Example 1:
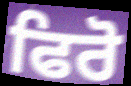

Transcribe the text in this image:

ਫਿਰੋ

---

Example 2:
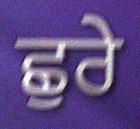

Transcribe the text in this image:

ਛੁਰੇ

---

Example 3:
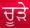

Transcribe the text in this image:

ਚੂੜੇ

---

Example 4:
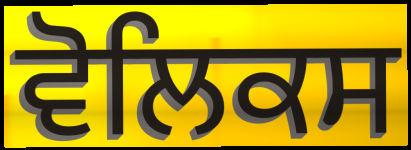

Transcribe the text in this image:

ਵੋਲਿਕਸ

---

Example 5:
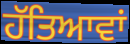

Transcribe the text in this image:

ਹੱਤਿਆਵਾਂ